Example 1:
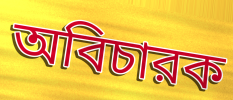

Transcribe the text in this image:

অবিচারক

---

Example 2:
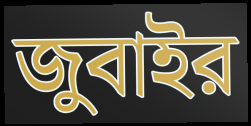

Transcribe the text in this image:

জুবাইর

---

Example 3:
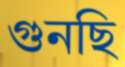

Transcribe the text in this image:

গুনছি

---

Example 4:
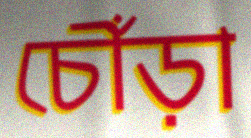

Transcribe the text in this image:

চৌঁড়া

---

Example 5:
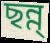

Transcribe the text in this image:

ছন্ন্